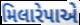
મિલારેપાએ